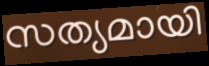
സത്യമായി